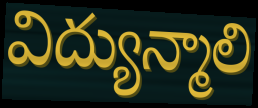
విద్యున్మాలి